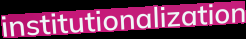
institutionalization